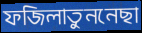
ফজিলাতুননেছা